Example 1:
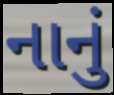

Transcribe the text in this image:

નાનું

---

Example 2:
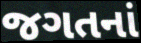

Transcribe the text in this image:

જગતનાં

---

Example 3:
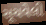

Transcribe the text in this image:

સૂચવેલી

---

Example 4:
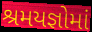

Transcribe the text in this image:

શ્રમયજ્ઞોમાં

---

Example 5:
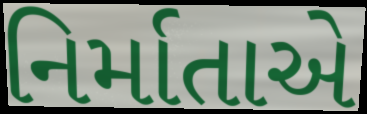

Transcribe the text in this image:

નિર્માતાએ